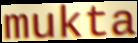
mukta